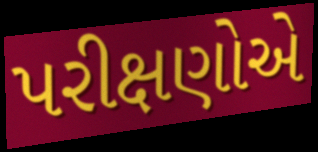
પરીક્ષણોએ